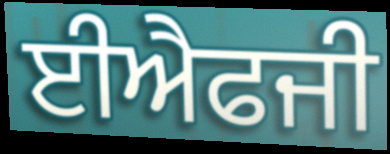
ਈਐਫਜੀ